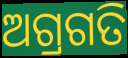
ଅଗ୍ରଗତି